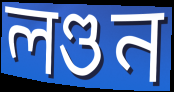
লণ্ডন